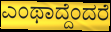
ಎಂಥಾದ್ದೆಂದರೆ